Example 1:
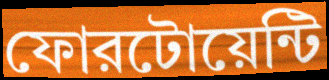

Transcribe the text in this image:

ফোরটোয়েন্টি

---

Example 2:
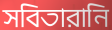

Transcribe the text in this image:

সবিতারানি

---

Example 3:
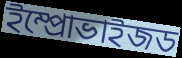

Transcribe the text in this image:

ইম্প্রোভাইজড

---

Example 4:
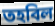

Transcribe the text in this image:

তহবিল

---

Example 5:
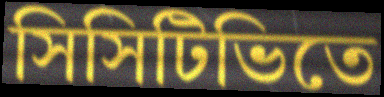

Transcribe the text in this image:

সিসিটিভিতে